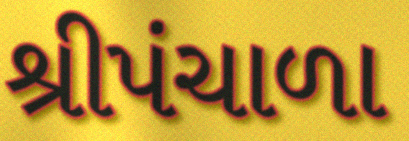
શ્રીપંચાળા